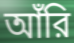
আঁরি